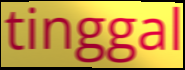
tinggal